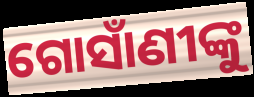
ଗୋସାଁଣୀଙ୍କୁ